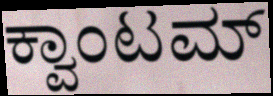
ಕ್ವಾಂಟಮ್